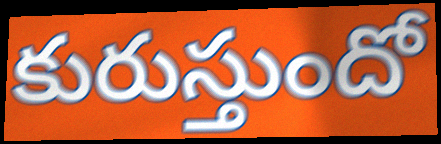
కురుస్తుందో